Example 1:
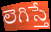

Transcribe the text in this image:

లెగిస్తే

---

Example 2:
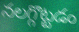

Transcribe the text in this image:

నలగ్గొట్టడం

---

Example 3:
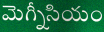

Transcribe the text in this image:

మెగ్నీసియం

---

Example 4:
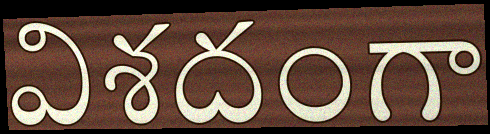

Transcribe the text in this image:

విశదంగా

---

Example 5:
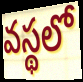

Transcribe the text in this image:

వస్థలో